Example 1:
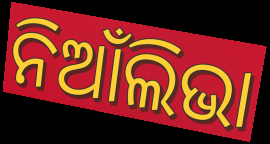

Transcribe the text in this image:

ନିଆଁଲିଭା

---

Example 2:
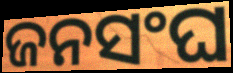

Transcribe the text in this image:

ଜନସଂଘ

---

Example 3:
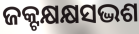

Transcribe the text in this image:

ଜକ୍ଟକ୍ଷକ୍ଷସଦ୍ଭଶ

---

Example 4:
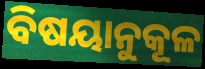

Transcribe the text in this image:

ବିଷୟାନୁକୂଳ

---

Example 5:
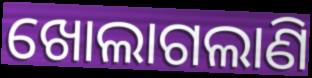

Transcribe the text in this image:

ଖୋଲାଗଲାଣି